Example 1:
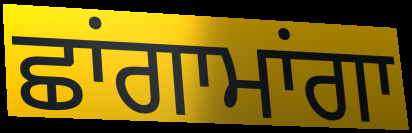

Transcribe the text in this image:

ਛਾਂਗਾਮਾਂਗਾ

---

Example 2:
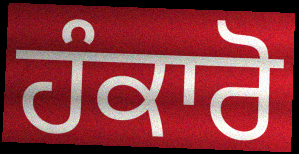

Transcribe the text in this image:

ਹੰਕਾਰੋ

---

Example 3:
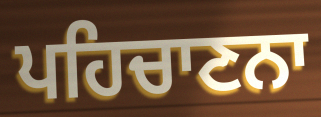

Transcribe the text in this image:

ਪਹਿਚਾਣਨਾ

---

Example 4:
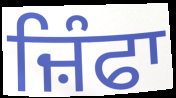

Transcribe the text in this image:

ਜ਼ਿੰਫਾ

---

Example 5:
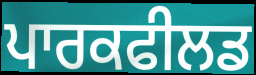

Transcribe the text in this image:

ਪਾਰਕਫੀਲਡ